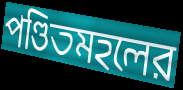
পণ্ডিতমহলের